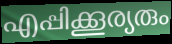
എപ്പിക്കൂര്യരും